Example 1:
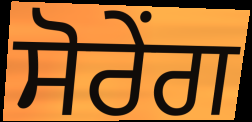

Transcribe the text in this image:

ਸੋਰੇਂਗ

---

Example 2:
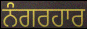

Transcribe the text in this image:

ਨੰਗਰਹਾਰ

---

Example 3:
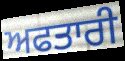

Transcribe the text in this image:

ਅਫਤਾਰੀ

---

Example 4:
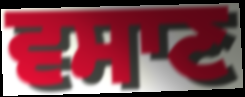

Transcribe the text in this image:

ਵਸਾਣ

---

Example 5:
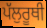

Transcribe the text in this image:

ਪੱਲੁਰੂਥੀ